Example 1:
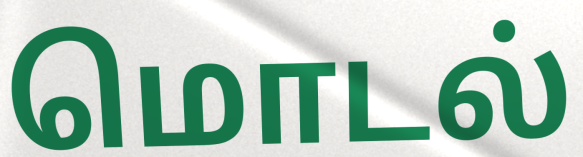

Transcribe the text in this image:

மொடல்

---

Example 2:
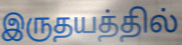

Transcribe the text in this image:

இருதயத்தில்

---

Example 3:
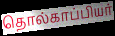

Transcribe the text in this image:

தொல்காப்பியர்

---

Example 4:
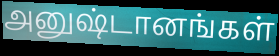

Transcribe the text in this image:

அனுஷ்டானங்கள்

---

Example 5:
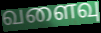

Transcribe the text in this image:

வளைவு